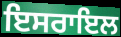
ਇਸਰਾਇਲ